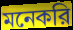
মনেকরি